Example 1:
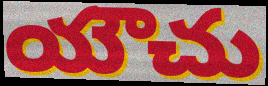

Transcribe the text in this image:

యౌచు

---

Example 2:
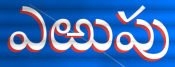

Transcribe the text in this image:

ఎఱుపు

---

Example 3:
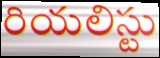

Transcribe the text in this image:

రియలిస్టు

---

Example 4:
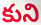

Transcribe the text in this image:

కుని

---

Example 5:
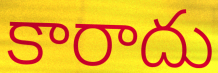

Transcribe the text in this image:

కారాదు